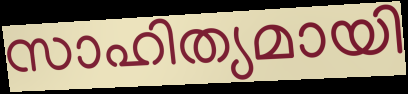
സാഹിത്യമായി